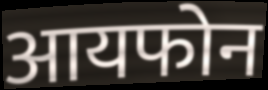
आयफोन